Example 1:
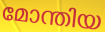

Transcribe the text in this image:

മോന്തിയ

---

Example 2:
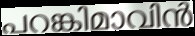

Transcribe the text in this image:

പറങ്കിമാവിൻ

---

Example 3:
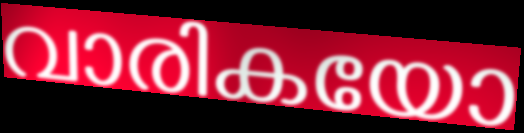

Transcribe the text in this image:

വാരികയോ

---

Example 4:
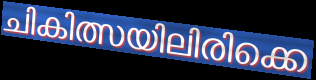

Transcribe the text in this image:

ചികിത്സയിലിരിക്കെ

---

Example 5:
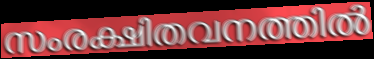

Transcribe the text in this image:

സംരക്ഷിതവനത്തിൽ